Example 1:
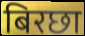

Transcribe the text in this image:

बिरछा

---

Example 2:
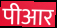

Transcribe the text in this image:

पीआर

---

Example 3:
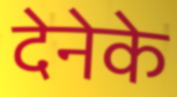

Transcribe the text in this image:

देनेके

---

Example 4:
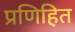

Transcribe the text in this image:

प्रणिहित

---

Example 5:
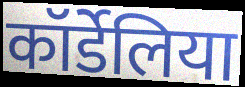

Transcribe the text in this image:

कॉर्डेलिया